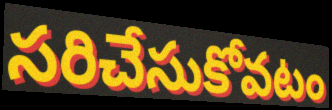
సరిచేసుకోవటం